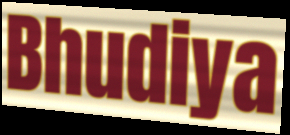
Bhudiya